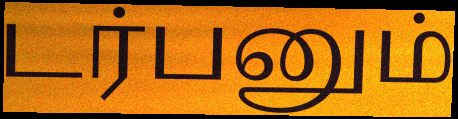
டர்பனும்